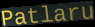
Patlaru